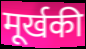
मूर्खकी